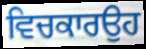
ਵਿਚਕਾਰਉਹ